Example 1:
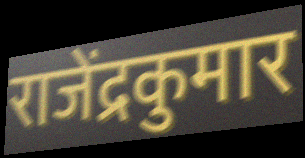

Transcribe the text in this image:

राजेंद्रकुमार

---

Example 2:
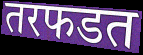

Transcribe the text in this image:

तरफडत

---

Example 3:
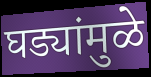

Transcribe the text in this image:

घड्यांमुळे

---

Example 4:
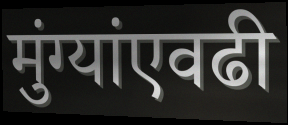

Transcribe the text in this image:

मुंग्यांएवढी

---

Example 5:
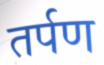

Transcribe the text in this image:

तर्पण